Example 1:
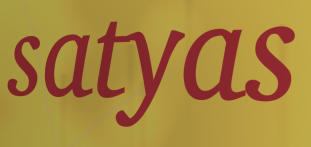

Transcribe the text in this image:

satyas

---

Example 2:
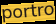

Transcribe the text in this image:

portro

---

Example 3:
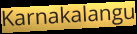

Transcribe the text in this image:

Karnakalangu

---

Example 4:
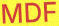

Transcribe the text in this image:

MDF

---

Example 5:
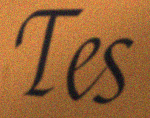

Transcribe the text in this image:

Tes